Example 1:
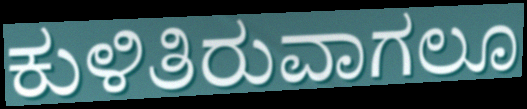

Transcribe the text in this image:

ಕುಳಿತಿರುವಾಗಲೂ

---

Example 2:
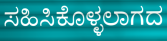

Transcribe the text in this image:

ಸಹಿಸಿಕೊಳ್ಳಲಾಗದ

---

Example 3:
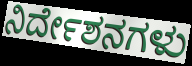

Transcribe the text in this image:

ನಿರ್ದೇಶನಗಳು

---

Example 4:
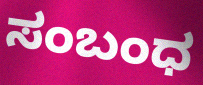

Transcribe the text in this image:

ಸಂಬಂಧ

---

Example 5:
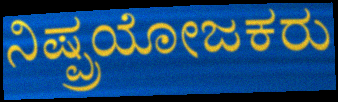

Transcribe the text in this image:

ನಿಷ್ಪ್ರಯೋಜಕರು